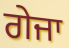
ਗੇਜਾ